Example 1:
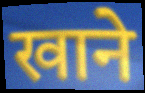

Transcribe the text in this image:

खाने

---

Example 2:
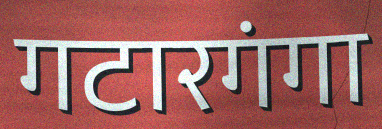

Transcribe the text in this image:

गटारगंगा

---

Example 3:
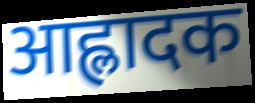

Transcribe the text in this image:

आह्लादक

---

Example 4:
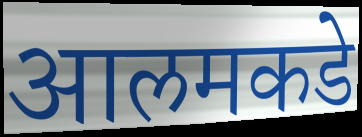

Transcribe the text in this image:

आलमकडे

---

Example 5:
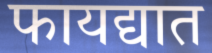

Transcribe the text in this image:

फायद्यात